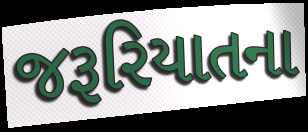
જરૂરિયાતના